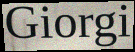
Giorgi